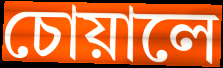
চোয়ালে